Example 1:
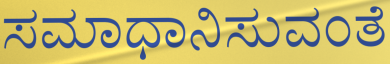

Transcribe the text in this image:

ಸಮಾಧಾನಿಸುವಂತೆ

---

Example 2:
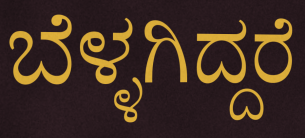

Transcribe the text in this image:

ಬೆಳ್ಳಗಿದ್ದರೆ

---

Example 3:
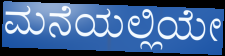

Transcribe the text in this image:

ಮನೆಯಲ್ಲಿಯೇ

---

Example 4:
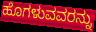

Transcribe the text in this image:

ಹೊಗಳುವವರನ್ನು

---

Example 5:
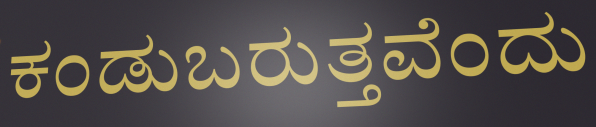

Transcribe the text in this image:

ಕಂಡುಬರುತ್ತವೆಂದು